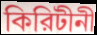
কিরিটীনী